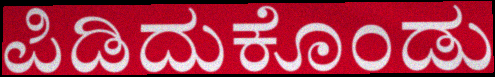
ಪಿಡಿದುಕೊಂಡು